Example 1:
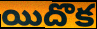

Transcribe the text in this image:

యిదొక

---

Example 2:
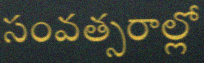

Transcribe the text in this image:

సంవత్సరాల్లో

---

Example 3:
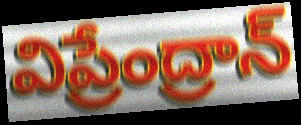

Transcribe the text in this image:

విప్రేంద్రాన్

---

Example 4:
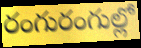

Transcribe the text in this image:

రంగురంగుల్లో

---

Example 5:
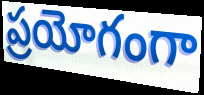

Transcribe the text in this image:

ప్రయోగంగా